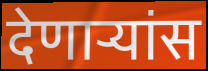
देणाऱ्यांस